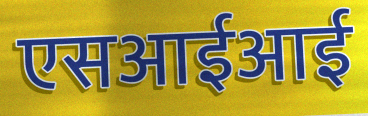
एसआईआई